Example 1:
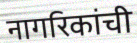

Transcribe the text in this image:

नागरिकांची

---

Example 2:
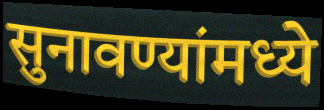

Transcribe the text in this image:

सुनावण्यांमध्ये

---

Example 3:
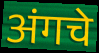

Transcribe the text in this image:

अंगचे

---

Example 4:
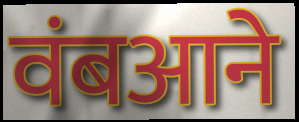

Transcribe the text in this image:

वंबआने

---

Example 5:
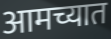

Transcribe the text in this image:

आमच्यात